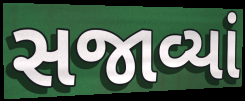
સજાવ્યાં